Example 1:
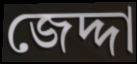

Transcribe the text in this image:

জেদ্দা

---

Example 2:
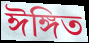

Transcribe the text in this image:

ঈঙ্গিত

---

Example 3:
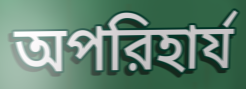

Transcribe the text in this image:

অপরিহার্য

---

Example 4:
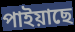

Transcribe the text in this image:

পাইয়াছে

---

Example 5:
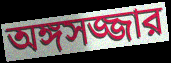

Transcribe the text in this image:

অঙ্গসজ্জার